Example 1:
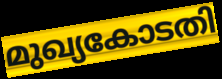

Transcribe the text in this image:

മുഖ്യകോടതി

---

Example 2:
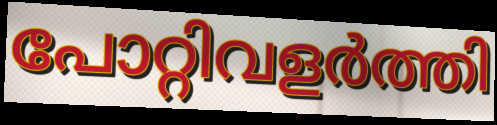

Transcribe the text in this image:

പോറ്റിവളർത്തി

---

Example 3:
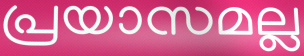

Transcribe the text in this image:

പ്രയാസമല്ല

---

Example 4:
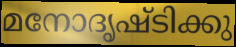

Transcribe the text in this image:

മനോദൃഷ്ടിക്കു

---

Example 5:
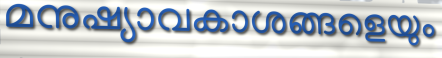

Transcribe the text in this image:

മനുഷ്യാവകാശങ്ങളെയും